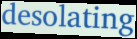
desolating